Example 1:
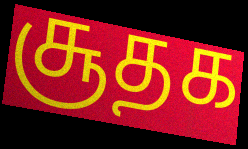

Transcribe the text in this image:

சூதக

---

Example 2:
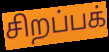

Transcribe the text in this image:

சிறப்பக்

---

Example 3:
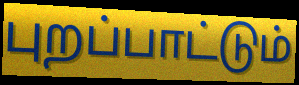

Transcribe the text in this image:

புறப்பாட்டும்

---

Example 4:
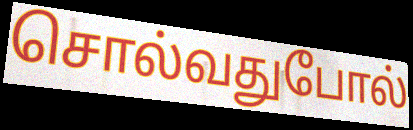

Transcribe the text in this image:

சொல்வதுபோல்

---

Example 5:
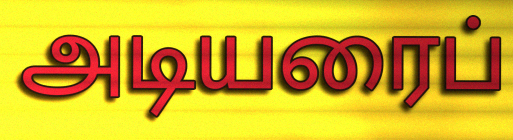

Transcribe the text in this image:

அடியரைப்